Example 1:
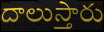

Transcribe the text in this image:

దాలుస్తారు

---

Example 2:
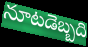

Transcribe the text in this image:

నూటడెబ్బది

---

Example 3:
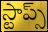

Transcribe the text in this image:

స్టాప్స్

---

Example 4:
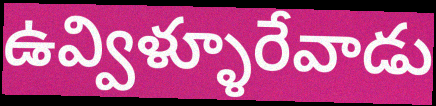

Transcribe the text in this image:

ఉవ్విళ్ళూరేవాడు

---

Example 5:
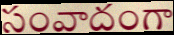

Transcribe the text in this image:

సంవాదంగా